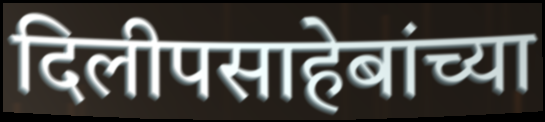
दिलीपसाहेबांच्या